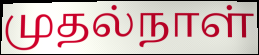
முதல்நாள்